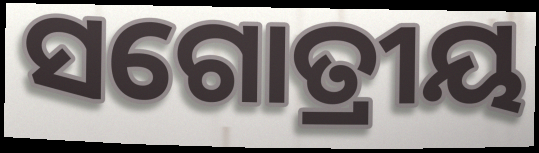
ସଗୋତ୍ରୀୟ